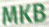
MKB